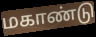
மகாண்டு